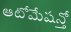
ఆటోమేషన్తో